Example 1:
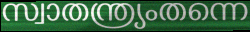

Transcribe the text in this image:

സ്വാതന്ത്ര്യംതന്നെ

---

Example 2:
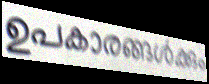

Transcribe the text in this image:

ഉപകാരങ്ങൾക്കും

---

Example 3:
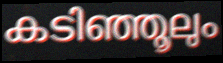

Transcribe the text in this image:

കടിഞ്ഞൂലും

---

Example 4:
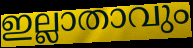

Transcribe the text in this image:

ഇല്ലാതാവും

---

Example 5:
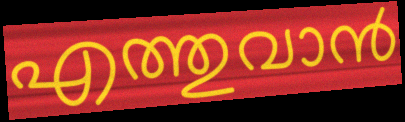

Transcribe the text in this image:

എത്തുവാൻ